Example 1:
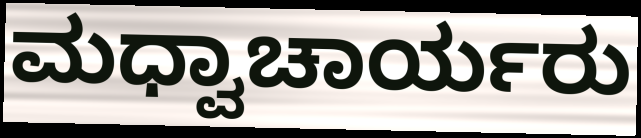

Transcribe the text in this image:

ಮಧ್ವಾಚಾರ್ಯರು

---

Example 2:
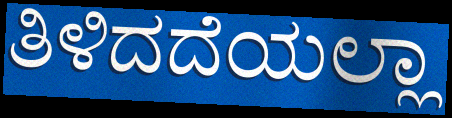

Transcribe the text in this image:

ತಿಳಿದದೆಯಲ್ಲಾ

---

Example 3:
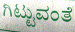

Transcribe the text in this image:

ಗಿಟ್ಟುವಂತೆ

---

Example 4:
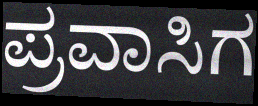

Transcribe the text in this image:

ಪ್ರವಾಸಿಗ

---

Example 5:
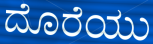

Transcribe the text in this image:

ದೊರೆಯು